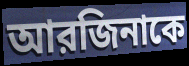
আরজিনাকে